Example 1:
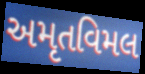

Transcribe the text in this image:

અમૃતવિમલ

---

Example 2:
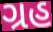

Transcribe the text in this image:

ગ્રહ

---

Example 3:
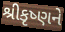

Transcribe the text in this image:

શ્રીકૃષ્ણને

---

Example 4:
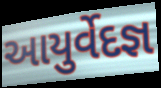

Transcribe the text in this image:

આયુર્વેદજ્ઞ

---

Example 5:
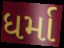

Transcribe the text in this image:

ધર્મા